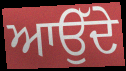
ਆਉੱਦੇ